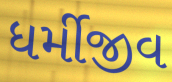
ધર્મીજીવ